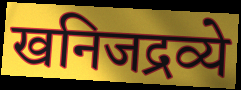
खनिजद्रव्ये